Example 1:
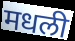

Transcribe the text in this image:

मधली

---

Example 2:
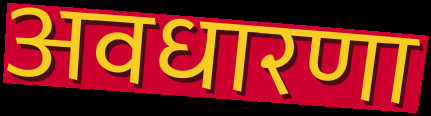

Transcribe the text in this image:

अवधारणा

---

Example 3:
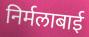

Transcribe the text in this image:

निर्मलाबाई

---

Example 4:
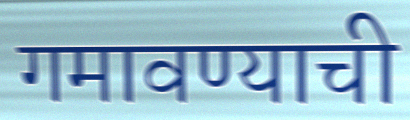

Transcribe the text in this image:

गमावण्याची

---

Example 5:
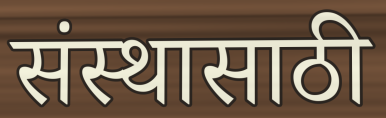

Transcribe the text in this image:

संस्थासाठी